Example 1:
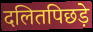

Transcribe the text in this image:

दलितपिछड़े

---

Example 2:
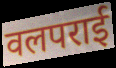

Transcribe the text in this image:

वलपराई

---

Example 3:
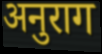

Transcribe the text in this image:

अनुराग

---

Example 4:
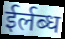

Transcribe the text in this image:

ईर्लब्ध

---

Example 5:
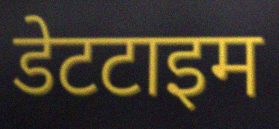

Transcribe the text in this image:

डेटटाइम